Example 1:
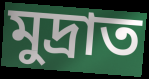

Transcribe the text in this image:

মুদ্ৰাত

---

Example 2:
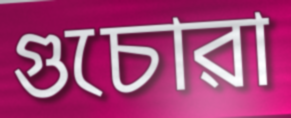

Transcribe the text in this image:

গুচোৱা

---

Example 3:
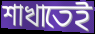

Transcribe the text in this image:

শাখাতেই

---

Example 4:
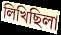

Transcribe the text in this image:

লিখিছিলা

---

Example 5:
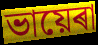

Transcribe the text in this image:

ভায়েৰা